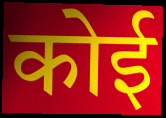
कोई